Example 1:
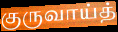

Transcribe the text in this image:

குருவாய்த்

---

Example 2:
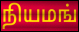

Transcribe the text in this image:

நியமங்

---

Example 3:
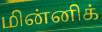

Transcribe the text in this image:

மின்னிக்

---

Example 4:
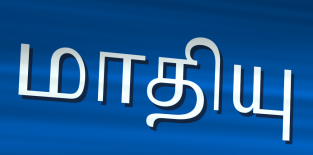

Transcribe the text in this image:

மாதியு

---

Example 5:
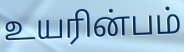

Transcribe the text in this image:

உயரின்பம்